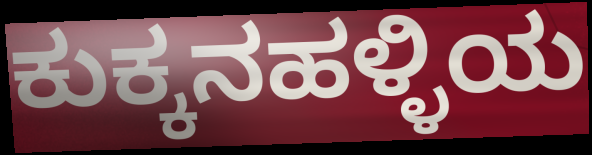
ಕುಕ್ಕನಹಳ್ಳಿಯ